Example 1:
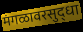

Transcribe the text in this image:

मंगळावरसुद्धा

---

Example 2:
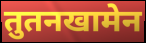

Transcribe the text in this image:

तुतनखामेन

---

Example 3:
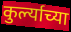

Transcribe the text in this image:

कुर्ल्याच्या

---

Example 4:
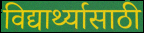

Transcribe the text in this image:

विद्यार्थ्यासाठी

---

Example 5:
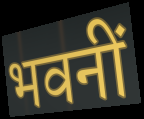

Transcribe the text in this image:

भवनीं